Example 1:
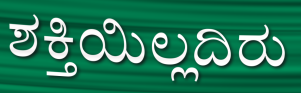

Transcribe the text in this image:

ಶಕ್ತಿಯಿಲ್ಲದಿರು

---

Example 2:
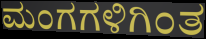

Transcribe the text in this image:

ಮಂಗಗಳಿಗಿಂತ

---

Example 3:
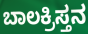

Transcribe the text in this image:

ಬಾಲಕ್ರಿಸ್ತನ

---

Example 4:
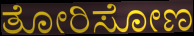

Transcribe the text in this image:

ತೋರಿಸೋಣ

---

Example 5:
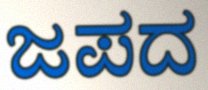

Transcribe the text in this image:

ಜಪದ